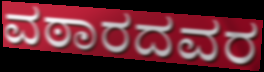
ವಠಾರದವರ